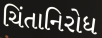
ચિંતાનિરોધ